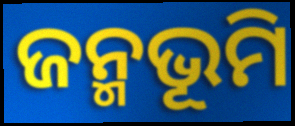
ଜନ୍ମଭୂମି